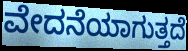
ವೇದನೆಯಾಗುತ್ತದೆ